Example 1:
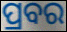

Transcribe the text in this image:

ପ୍ରବର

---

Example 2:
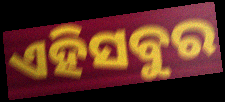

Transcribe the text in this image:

ଏହିସବୁର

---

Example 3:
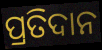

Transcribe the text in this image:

ପ୍ରତିଦାନ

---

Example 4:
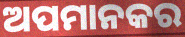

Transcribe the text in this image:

ଅପମାନକର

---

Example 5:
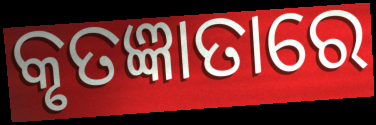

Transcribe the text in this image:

କୃତଜ୍ଞାତାରେ